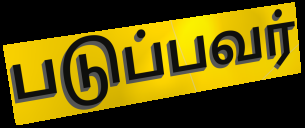
படுப்பவர்